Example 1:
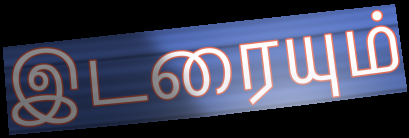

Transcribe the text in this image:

இடரையும்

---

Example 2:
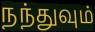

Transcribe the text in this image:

நந்துவும்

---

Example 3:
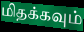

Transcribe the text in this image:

மிதக்கவும்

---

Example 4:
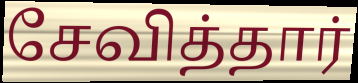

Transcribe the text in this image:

சேவித்தார்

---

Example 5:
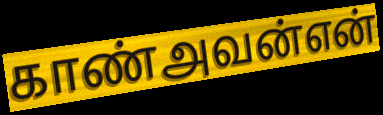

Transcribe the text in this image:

காண்அவன்என்